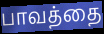
பாவத்தை